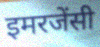
इमरजेंसी